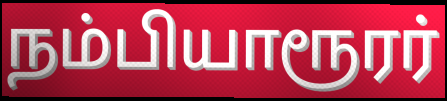
நம்பியாரூரர்